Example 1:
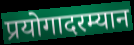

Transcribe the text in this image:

प्रयोगादरम्यान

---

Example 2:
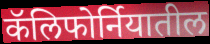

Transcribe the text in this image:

कॅलिफोर्नियातील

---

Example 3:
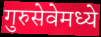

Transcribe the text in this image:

गुरुसेवेमध्ये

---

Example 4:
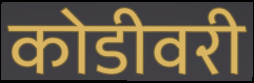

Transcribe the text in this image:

कोडीवरी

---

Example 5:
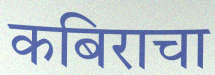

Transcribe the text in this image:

कबिराचा